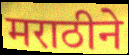
मराठीने